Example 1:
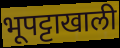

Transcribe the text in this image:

भूपट्टाखाली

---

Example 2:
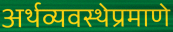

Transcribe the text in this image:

अर्थव्यवस्थेप्रमाणे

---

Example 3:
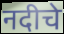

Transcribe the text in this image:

नदीचे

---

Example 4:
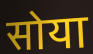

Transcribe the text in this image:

सोया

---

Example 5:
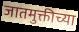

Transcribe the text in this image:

जातमुक्तीच्या